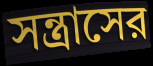
সন্ত্রাসের